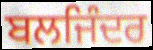
ਬਲਜਿੰਦਰ